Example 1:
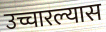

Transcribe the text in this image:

उच्चारल्यास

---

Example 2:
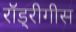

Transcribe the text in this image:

रॉड्रीगीस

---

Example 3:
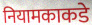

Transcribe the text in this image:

नियामकाकडे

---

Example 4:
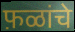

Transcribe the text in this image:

फ़ळांचे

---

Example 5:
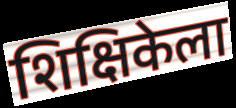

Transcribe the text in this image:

शिक्षिकेला